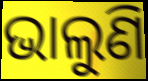
ଭାଲୁଣି